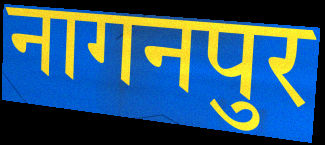
नागनपुर